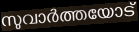
സുവാർത്തയോട്